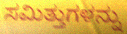
ಸಮಿತ್ತುಗಳನ್ನು